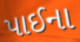
પાઈના